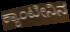
ಕ್ಯಾಂಟೀನಿನ